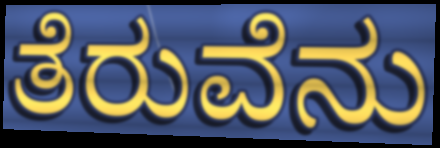
ತೆರುವೆನು